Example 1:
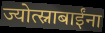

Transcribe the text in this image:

ज्योत्स्नाबाईंना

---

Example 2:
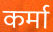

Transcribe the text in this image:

कर्मा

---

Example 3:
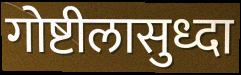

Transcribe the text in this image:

गोष्टीलासुध्दा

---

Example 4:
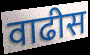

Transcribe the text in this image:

वाढीस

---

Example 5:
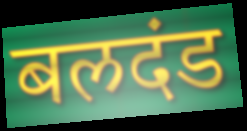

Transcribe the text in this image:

बलदंड